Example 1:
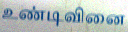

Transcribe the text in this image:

உண்டிவினை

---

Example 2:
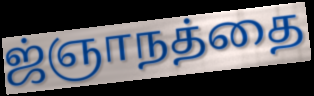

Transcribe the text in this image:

ஜ்ஞாநத்தை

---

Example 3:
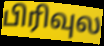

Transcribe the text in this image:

பிரிவுல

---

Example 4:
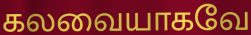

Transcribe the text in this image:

கலவையாகவே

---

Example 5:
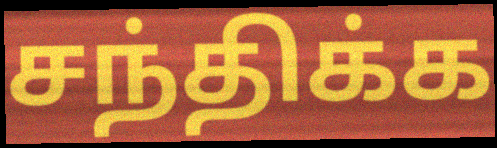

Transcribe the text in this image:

சந்திக்க